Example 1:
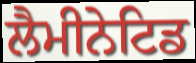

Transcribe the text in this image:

ਲੈਮੀਨੇਟਿਡ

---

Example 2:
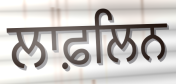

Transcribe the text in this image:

ਲਾਫ਼ਲਿਨ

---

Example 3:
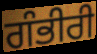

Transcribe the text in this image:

ਗੰਭੀਰੀ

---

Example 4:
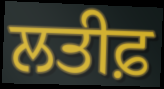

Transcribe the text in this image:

ਲਤੀਫ਼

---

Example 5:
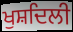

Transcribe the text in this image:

ਖੁਸ਼ਦਿਲੀ